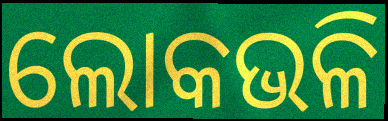
ଲୋକଭଳି